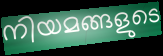
നിയമങ്ങളുടെ